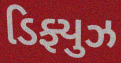
ડિફ્યુઝ